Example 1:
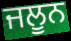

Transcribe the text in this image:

ਜਲੂਨ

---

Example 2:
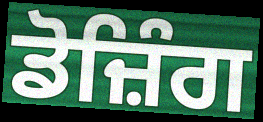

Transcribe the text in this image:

ਡੋਜ਼ਿੰਗ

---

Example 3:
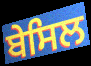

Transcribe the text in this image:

ਬੇਸਿਲ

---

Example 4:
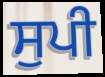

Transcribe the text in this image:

ਸੁਪੀ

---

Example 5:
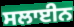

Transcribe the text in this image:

ਸਲਾਈਨ